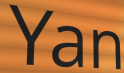
Yan